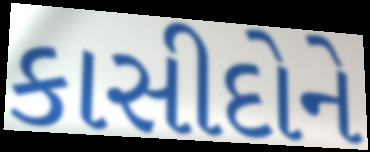
કાસીદોને